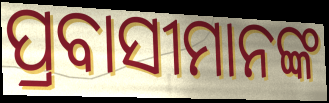
ପ୍ରବାସୀମାନଙ୍କ